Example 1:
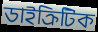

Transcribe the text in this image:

ডাইক্ৰিটিক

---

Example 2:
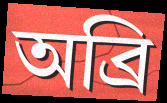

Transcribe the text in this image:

অব্ৰি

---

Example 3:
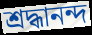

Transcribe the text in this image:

শ্ৰদ্ধানন্দ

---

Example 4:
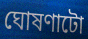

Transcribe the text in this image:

ঘোষণাটো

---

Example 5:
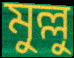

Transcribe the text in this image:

মুল্লু